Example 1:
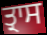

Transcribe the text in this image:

ਤ੍ਰਾਸ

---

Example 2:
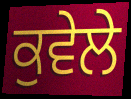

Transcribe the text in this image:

ਕੁਵੇਲੇ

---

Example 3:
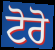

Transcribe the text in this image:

ਟੋਰੋ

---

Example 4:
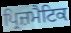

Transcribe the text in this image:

ਪ੍ਰਿਜ਼ਮੈਟਿਕ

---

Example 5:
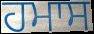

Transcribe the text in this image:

ਹਮਾਸ